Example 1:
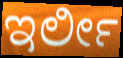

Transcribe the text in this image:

ಇರ್ಲೀ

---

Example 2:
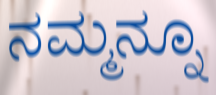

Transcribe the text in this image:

ನಮ್ಮನ್ನೂ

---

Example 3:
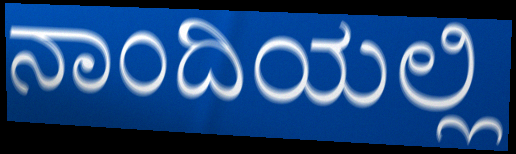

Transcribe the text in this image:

ನಾಂದಿಯಲ್ಲಿ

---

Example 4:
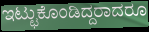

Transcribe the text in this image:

ಇಟ್ಟುಕೊಂಡಿದ್ದರಾದರೂ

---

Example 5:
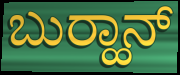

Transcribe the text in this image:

ಬುರ‍್ಹಾನ್